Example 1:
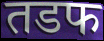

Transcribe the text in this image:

तडफ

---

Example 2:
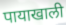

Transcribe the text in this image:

पायाखाली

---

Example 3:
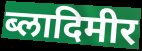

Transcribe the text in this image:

ब्लादिमीर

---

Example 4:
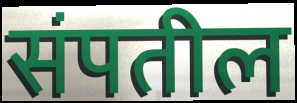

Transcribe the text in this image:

संपतील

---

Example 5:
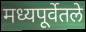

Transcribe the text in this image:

मध्यपूर्वेतले